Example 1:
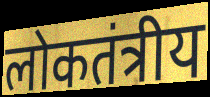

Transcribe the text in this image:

लोकतंत्रीय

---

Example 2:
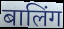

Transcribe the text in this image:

बालिंग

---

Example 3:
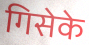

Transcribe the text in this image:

गिसेके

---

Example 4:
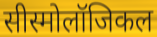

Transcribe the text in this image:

सीस्मोलॉजिकल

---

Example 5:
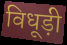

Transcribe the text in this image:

विधूड़ी